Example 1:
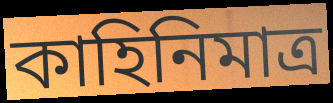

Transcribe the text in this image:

কাহিনিমাত্র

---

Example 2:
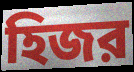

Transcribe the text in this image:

হিজর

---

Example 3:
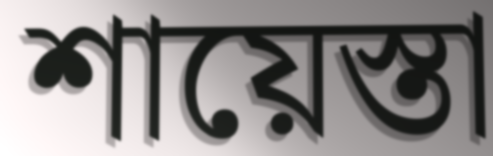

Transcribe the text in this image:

শায়েস্তা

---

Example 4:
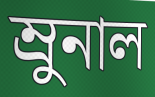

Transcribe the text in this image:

ম্রুনাল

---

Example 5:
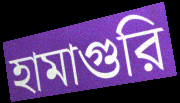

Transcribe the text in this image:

হামাগুরি